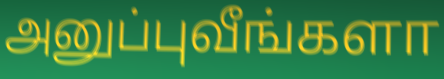
அனுப்புவீங்களா